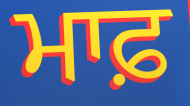
ਮਾਫ਼